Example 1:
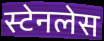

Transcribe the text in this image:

स्टेनलेस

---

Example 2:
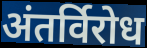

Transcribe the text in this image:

अंतर्विरोध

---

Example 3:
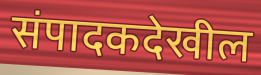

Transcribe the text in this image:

संपादकदेखील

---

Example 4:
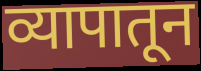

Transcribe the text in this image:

व्यापातून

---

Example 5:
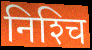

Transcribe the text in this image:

निश्चि